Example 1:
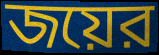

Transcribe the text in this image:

জয়ের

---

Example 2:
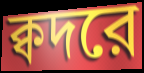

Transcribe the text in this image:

ক্বদরে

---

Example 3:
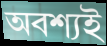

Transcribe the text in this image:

অবশ্যই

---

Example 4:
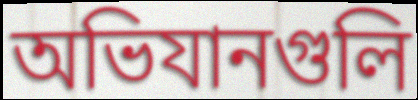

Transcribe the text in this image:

অভিযানগুলি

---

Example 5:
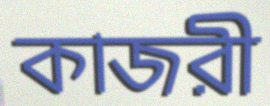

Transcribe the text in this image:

কাজরী